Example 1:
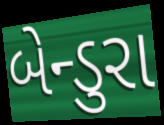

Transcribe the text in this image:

બેન્ડુરા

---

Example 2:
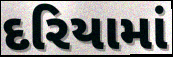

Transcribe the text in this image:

દરિયામાં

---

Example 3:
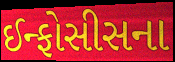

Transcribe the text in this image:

ઈન્ફોસીસના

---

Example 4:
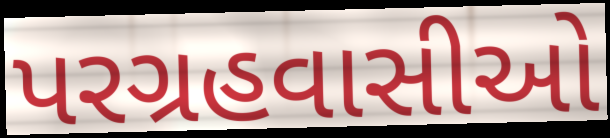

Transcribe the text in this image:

પરગ્રહવાસીઓ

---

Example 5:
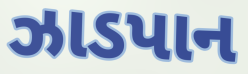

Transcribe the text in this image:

ઝાડપાન